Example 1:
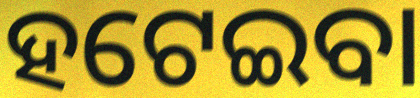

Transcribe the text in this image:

ହଟେଇବା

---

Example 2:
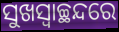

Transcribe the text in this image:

ସୁଖସ୍ୱାଚ୍ଛନ୍ଦରେ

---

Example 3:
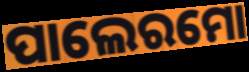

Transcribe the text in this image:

ପାଲେରମୋ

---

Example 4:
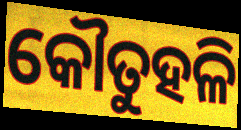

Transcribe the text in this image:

କୌତୁହଳି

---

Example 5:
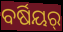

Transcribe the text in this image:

ବର୍ଷିୟର୍